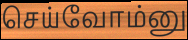
செய்வோம்னு